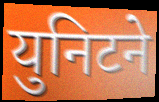
युनिटने